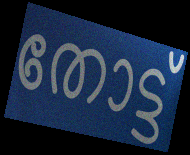
തോട്ട്